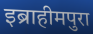
इब्राहीमपुरा